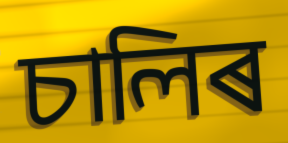
চালিৰ